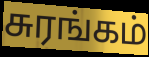
சுரங்கம்